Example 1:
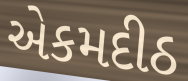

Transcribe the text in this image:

એકમદીઠ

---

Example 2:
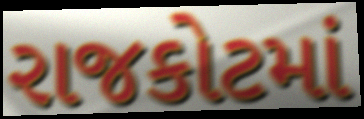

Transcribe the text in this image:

રાજકોટમાં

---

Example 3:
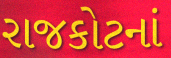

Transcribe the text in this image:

રાજકોટનાં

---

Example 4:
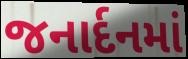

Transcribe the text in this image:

જનાર્દનમાં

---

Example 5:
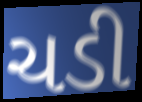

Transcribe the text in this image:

ચડી